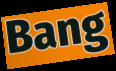
Bang